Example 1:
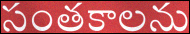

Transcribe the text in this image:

సంతకాలను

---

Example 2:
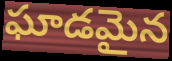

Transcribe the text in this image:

ఘాడమైన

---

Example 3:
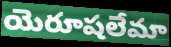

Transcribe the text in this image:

యెరూషలేమా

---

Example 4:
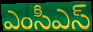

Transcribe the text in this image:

ఎంసీఎస్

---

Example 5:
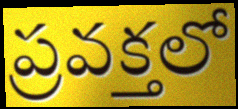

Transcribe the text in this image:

ప్రవక్తలో